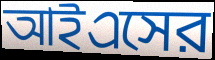
আইএসের